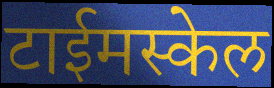
टाईमस्केल